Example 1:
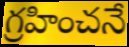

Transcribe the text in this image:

గ్రహించనే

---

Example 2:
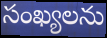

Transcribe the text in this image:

సంఖ్యలను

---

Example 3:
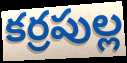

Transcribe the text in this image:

కర్రపుల్ల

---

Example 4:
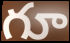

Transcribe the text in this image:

గూ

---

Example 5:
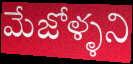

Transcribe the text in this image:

మేజోళ్ళని